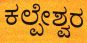
ಕಲ್ಪೇಶ್ವರ